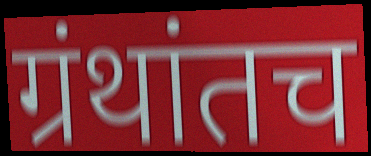
ग्रंथांतच